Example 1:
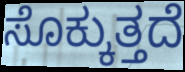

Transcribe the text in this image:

ಸೊಕ್ಕುತ್ತದೆ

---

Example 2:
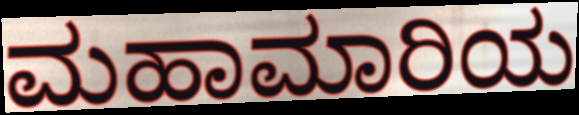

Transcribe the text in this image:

ಮಹಾಮಾರಿಯ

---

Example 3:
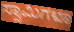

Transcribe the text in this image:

ಸ್ವಾಮಿಗಳೂ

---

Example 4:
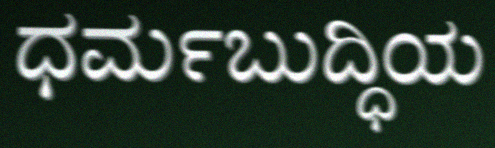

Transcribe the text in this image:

ಧರ್ಮಬುದ್ಧಿಯ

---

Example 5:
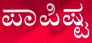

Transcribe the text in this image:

ಪಾಪಿಷ್ಟ